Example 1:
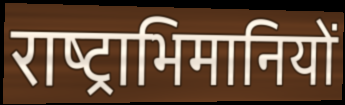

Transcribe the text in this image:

राष्ट्राभिमानियों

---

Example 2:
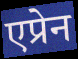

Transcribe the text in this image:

एप्रेन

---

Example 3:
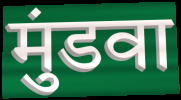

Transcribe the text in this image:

मुंडवा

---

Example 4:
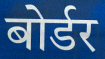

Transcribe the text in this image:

बोर्डर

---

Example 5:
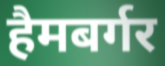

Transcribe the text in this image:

हैमबर्गर